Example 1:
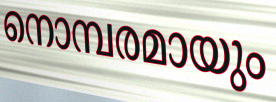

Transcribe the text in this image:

നൊമ്പരമായും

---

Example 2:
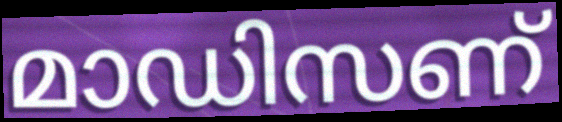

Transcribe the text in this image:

മാഡിസണ്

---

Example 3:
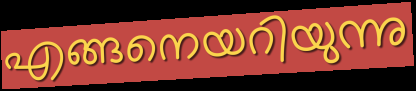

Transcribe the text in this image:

എങ്ങനെയറിയുന്നു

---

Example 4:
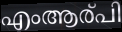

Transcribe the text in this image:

എംആര്പി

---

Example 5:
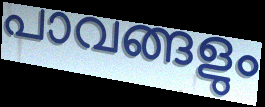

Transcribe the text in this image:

പാവങ്ങളും